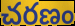
చరణం